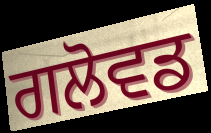
ਗਲੋਵਡ